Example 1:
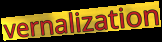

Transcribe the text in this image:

vernalization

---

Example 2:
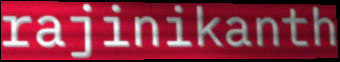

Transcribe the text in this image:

rajinikanth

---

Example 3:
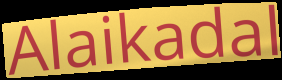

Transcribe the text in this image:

Alaikadal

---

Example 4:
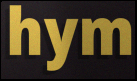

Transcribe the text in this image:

hym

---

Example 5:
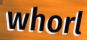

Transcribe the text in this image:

whorl